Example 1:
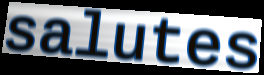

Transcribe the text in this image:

salutes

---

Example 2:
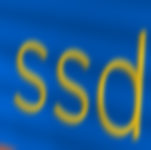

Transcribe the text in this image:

ssd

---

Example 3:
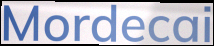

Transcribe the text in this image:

Mordecai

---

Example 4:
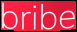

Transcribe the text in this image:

bribe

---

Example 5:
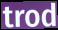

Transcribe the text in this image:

trod